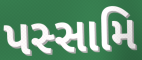
પસ્સામિ